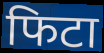
फिटा